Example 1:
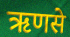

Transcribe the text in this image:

ऋणसे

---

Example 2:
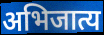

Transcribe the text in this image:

अभिजात्य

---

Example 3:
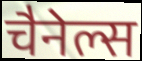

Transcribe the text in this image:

चैनेल्स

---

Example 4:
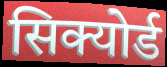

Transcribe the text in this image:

सिक्‍योर्ड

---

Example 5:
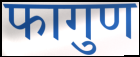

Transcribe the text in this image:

फागुण